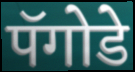
पॅगोडे